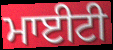
ਮਾਈਟੀ